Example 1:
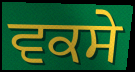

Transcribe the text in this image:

ਵਕਸੇ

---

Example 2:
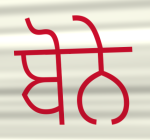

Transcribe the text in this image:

ਬੋਨੇ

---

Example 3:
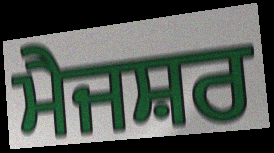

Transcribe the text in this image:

ਮੈਜਸ਼ਰ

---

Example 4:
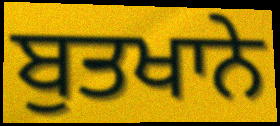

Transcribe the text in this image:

ਬੁਤਖਾਨੇ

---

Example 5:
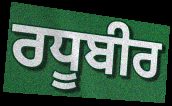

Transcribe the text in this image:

ਰਧੂਬੀਰ